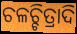
ଚଳଚ୍ଚିତ୍ରାଦି